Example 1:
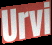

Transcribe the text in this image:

Urvi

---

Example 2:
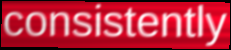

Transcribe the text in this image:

consistently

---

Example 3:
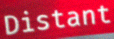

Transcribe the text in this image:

Distant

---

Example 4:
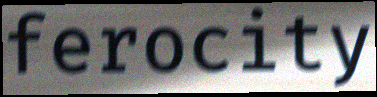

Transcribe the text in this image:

ferocity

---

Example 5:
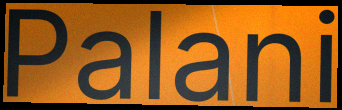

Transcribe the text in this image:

Palani